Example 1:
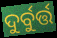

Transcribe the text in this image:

ଦୁର୍ବୁର୍ତ୍ତ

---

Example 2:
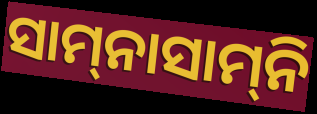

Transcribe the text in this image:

ସାମ୍‍ନାସାମ୍‍ନି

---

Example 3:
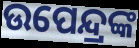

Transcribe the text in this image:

ଉପେନ୍ଦ୍ରଙ୍କ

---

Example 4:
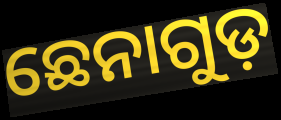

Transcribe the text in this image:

ଛେନାଗୁଡ଼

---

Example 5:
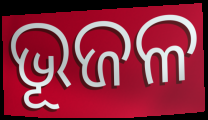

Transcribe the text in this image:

ଭୂଜଳ